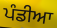
ਪੰਡੀਆ